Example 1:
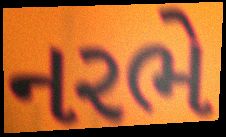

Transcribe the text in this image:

નરભે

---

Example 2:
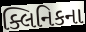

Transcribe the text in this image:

ક્લિનિકના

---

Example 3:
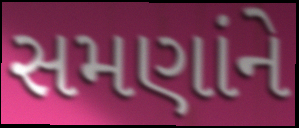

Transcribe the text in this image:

સમણાંને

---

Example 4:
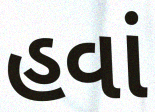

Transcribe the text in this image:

હવાં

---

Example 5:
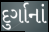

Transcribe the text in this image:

દુર્ગાનાં